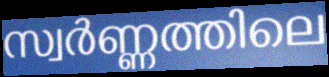
സ്വർണ്ണത്തിലെ